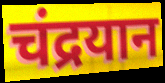
चंद्रयान